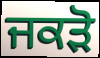
ਜਕੜੋ